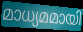
മാധ്യമമായി